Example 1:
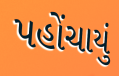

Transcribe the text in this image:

પહોંચાયું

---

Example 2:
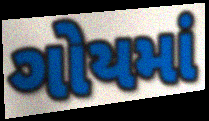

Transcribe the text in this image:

ગોયમાં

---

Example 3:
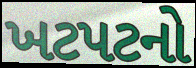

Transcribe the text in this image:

ખટપટનો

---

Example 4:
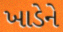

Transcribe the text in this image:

ખાડેને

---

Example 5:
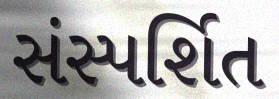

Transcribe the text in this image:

સંસ્પર્શિત